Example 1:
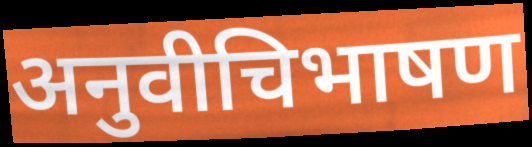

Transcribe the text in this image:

अनुवीचिभाषण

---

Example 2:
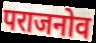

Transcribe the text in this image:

पराजनोव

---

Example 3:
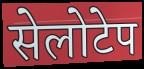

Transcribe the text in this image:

सेलोटेप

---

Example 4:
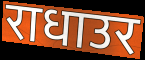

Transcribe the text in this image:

राधाउर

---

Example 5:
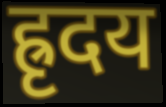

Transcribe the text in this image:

ह्रृदय